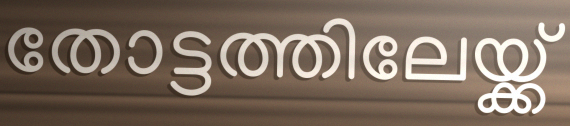
തോട്ടത്തിലേയ്ക്ക്